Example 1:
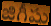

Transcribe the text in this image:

జిగీషు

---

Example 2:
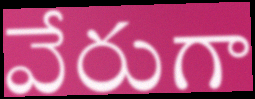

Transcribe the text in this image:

వేరుగా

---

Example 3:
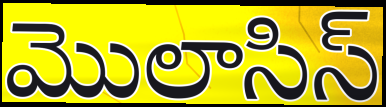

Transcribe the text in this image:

మొలాసిస్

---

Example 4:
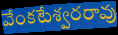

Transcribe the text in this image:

వేంకటేశ్వరరావు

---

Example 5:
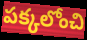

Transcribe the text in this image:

పక్కలోంచి